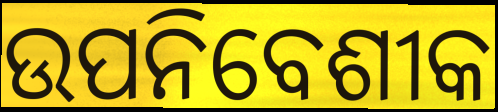
ଉପନିବେଶୀକ